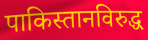
पाकिस्तानविरुद्ध